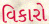
વિકારો